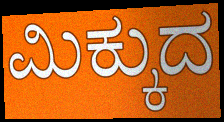
ಮಿಕ್ಕುದ